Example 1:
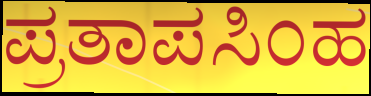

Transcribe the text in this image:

ಪ್ರತಾಪಸಿಂಹ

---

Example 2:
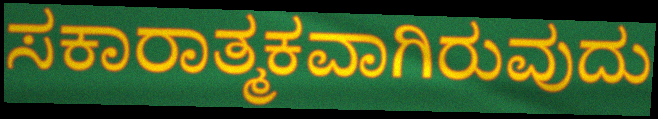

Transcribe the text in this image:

ಸಕಾರಾತ್ಮಕವಾಗಿರುವುದು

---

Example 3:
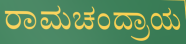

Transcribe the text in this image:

ರಾಮಚಂದ್ರಾಯ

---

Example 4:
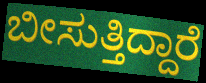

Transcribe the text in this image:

ಬೀಸುತ್ತಿದ್ದಾರೆ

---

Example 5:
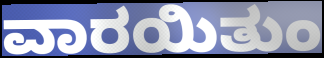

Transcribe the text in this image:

ವಾರಯಿತುಂ